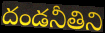
దండనీతిని